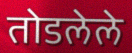
तोडलेले